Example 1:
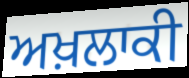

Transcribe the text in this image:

ਅਖ਼ਲਾਕੀ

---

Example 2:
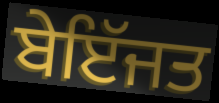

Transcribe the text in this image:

ਬੇਇੱਜਤ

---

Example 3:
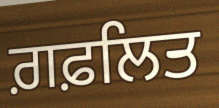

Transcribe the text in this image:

ਗ਼ਫ਼ਲਿਤ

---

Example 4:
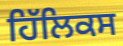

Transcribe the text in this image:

ਹਿੱਲਿਕਸ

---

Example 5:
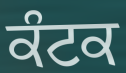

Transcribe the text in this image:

ਕੰਟਕ